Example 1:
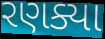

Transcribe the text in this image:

રણક્યા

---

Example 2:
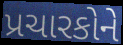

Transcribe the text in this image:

પ્રચારકોને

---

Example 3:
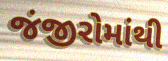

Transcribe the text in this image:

જંજીરોમાંથી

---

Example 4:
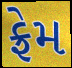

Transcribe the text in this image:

ફ્રેમ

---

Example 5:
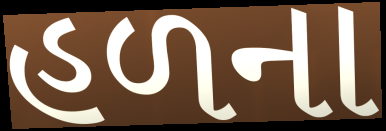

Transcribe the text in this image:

હળના